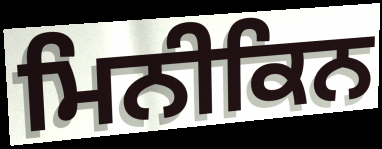
ਮਿਨੀਕਿਨ